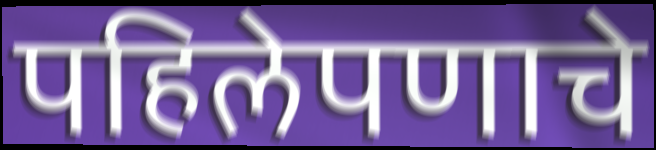
पहिलेपणाचे